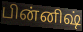
பின்னிஷ்